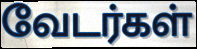
வேடர்கள்